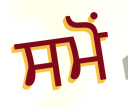
ਸਮੋਂ